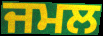
ਜਮਲ